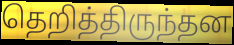
தெறித்திருந்தன